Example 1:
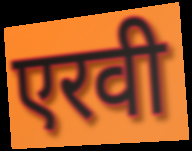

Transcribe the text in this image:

एरवी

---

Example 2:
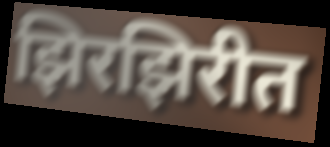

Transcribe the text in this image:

झिरझिरीत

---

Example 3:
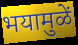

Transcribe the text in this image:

भयामुळें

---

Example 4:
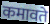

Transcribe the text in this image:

कमावते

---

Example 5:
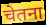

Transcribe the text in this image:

चेतना